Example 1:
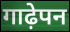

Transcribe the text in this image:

गाढ़ेपन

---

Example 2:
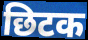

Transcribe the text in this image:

छिटक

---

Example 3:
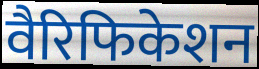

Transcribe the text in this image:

वैरिफिकेशन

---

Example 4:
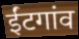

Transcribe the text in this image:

ईंटगांव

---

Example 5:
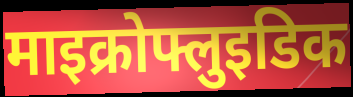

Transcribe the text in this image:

माइक्रोफ्लुइडिक